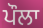
ਪੌਲਾ